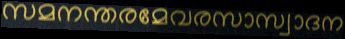
സമനന്തരമേവരസാസ്വാദന